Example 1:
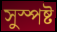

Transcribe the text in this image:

সুস্পষ্ট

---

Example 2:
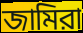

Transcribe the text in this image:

জামিরা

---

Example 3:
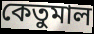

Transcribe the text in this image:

কেতুমাল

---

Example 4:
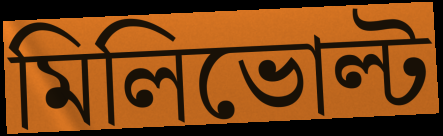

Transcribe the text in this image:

মিলিভোল্ট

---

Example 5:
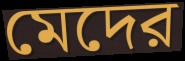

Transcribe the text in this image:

মেদের